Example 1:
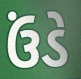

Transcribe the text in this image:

ઉંડે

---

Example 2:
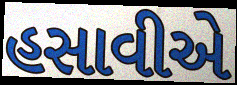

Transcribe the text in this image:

હસાવીએ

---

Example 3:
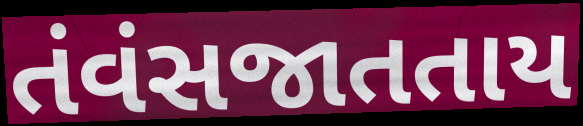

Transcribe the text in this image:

તંવંસજાતતાય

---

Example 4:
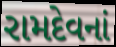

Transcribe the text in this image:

રામદેવનાં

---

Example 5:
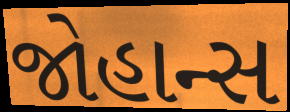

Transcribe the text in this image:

જોહાન્સ